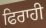
ਫਿਰਾਹੀ